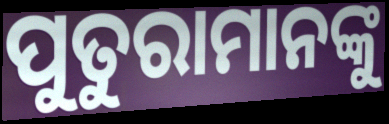
ପୁତୁରାମାନଙ୍କୁ